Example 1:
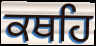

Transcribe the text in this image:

ਕਥਹਿ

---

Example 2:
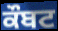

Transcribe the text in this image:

ਕੌਬਟ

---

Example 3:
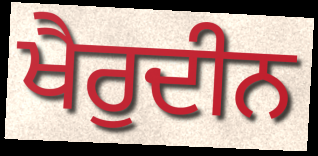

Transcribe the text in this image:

ਖੈਰੁਦੀਨ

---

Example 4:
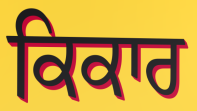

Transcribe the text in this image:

ਕਿਕਾਰ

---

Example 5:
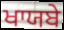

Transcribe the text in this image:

ਖਾਯਬੇ